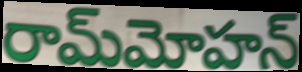
రామ్‌మోహన్